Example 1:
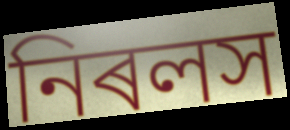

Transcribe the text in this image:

নিৰলস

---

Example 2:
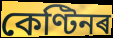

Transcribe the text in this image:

কেণ্টিনৰ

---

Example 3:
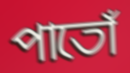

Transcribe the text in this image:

পাতোঁ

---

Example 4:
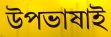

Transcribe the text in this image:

উপভাষাই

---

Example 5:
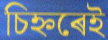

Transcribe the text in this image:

চিহ্নৰেই